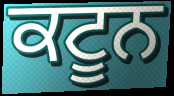
ਕਟੂਨ